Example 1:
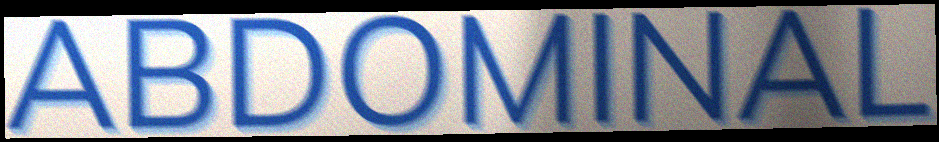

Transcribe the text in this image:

ABDOMINAL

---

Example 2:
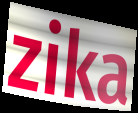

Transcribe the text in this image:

zika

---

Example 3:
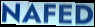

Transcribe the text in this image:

NAFED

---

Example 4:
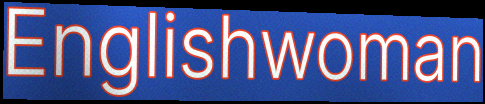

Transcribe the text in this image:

Englishwoman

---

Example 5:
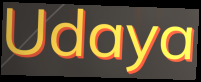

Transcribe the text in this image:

Udaya